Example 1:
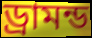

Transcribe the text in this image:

ড্রামন্ড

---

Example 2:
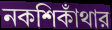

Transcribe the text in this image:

নকশিকাঁথার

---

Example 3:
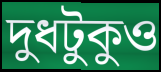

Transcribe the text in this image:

দুধটুকুও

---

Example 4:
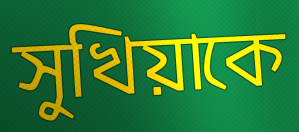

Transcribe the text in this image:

সুখিয়াকে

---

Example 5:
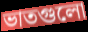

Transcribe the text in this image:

ভাতগুলো